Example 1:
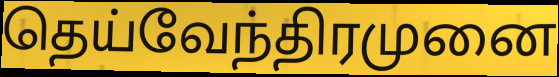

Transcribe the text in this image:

தெய்வேந்திரமுனை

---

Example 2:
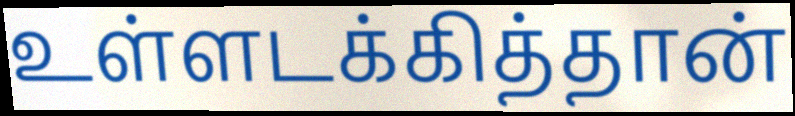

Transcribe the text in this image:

உள்ளடக்கித்தான்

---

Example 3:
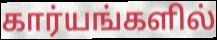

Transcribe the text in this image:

கார்யங்களில்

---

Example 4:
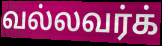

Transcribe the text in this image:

வல்லவர்க்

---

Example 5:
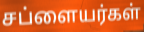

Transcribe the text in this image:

சப்ளையர்கள்